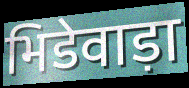
भिडेवाड़ा